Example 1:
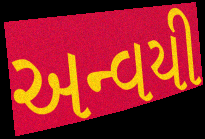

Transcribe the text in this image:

અન્વયી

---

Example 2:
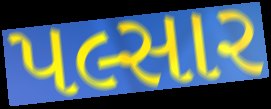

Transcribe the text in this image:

પલ્સાર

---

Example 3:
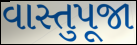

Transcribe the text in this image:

વાસ્તુપૂજા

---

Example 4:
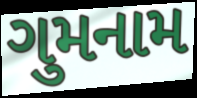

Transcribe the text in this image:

ગુમનામ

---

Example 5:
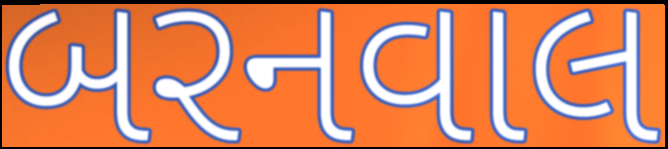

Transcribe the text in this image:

બરનવાલ